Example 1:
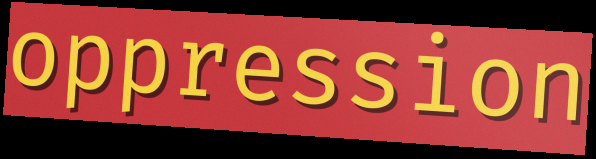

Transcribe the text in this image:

oppression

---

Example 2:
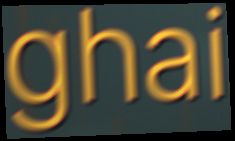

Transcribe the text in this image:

ghai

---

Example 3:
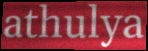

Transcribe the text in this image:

athulya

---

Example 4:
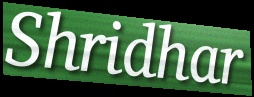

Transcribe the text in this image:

Shridhar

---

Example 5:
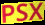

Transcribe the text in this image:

PSX